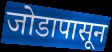
जोडापासून